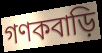
গণকবাড়ি